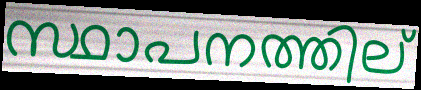
സ്ഥാപനത്തില്